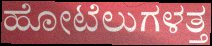
ಹೋಟೆಲುಗಳತ್ತ